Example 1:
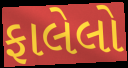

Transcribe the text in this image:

ફાલેલો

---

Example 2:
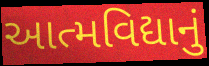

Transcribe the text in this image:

આત્મવિદ્યાનું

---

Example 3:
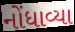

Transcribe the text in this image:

નોંધાવ્યા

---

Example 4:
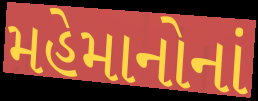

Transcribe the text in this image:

મહેમાનોનાં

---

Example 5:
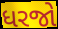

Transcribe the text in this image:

ધરજો